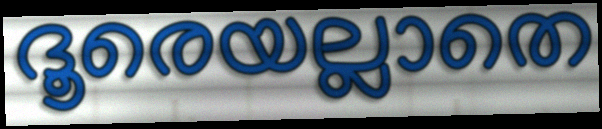
ദൂരെയല്ലാതെ